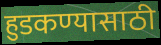
हुडकण्यासाठी